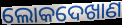
ଲୋକଦେଖାଣ